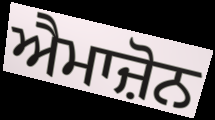
ਐਮਾਜ਼ੋਨ